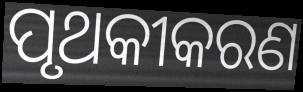
ପୃଥକୀକରଣ